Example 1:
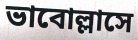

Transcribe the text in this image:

ভাবোল্লাসে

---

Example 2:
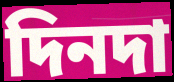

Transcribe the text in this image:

দিনদা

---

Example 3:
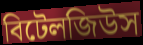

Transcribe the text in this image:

বিটেলজিউস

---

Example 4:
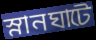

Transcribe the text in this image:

স্নানঘাটে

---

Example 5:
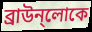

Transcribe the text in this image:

ব্রাউন্লোকে